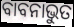
ବାବନାଭୁତ